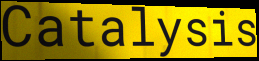
Catalysis